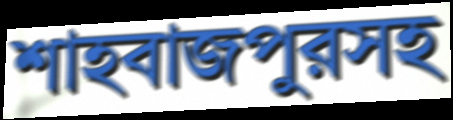
শাহবাজপুরসহ